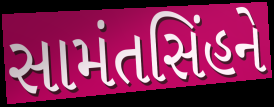
સામંતસિંહને